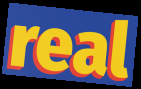
real